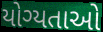
યોગ્યતાઓ